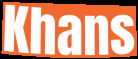
Khans